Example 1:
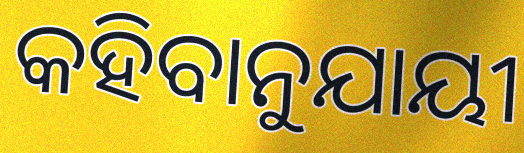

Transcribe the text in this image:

କହିବାନୁଯାୟୀ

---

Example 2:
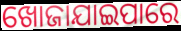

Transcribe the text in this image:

ଖୋଜାଯାଇପାରେ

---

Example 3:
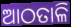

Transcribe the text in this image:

ଆଠତାଳି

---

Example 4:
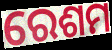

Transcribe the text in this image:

ରେଶମ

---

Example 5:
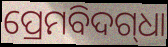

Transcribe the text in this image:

ପ୍ରେମବିଦଗ୍‍ଧା